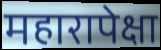
महारापेक्षा